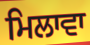
ਮਿਲਾਵਾ